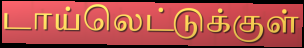
டாய்லெட்டுக்குள்